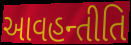
આવહન્તીતિ